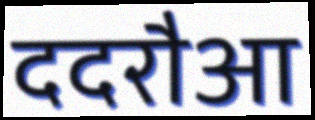
ददरौआ